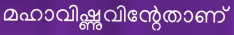
മഹാവിഷ്ണുവിന്റേതാണ്